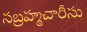
సబ్రహ్మచారీసు